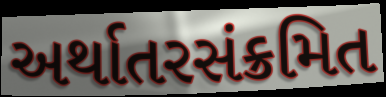
અર્થાતરસંક્રમિત